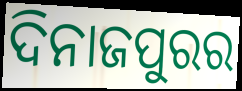
ଦିନାଜପୁରର